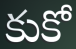
కుకో